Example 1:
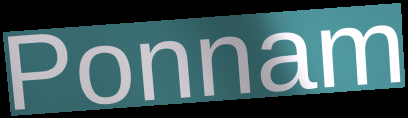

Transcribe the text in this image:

Ponnam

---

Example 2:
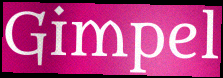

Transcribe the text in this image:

Gimpel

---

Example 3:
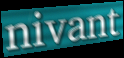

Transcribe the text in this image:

nivant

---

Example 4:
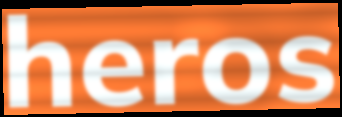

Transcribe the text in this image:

heros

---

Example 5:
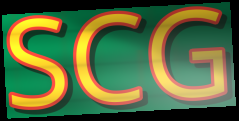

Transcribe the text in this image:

SCG